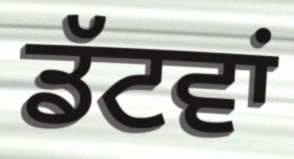
ਡੱਟਵਾਂ